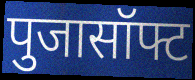
पुजासॉफ्ट